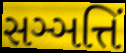
સઞ્ઞત્તિં